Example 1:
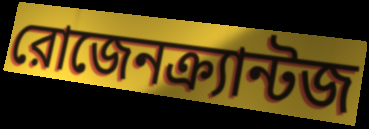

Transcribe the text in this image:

রোজেনক্র্যান্টজ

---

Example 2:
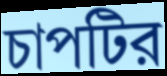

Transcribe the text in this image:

চাপটির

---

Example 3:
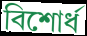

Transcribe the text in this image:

বিশোর্ধ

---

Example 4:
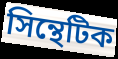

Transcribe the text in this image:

সিন্থেটিক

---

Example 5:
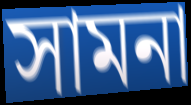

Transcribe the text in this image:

সামনা